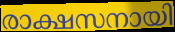
രാക്ഷസനായി